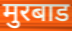
मुरबाड